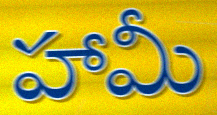
హామీ